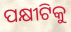
ପକ୍ଷୀଟିକୁ